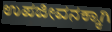
ಉಪಜೀವನಕ್ಕಾಗಿ